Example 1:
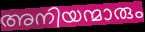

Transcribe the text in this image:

അനിയന്മാരും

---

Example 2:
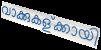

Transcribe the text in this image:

വാക്കുകള്ക്കായി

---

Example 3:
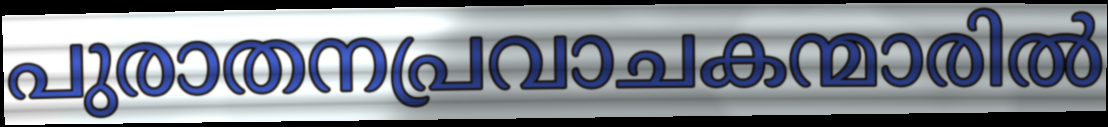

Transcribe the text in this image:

പുരാതനപ്രവാചകന്മാരിൽ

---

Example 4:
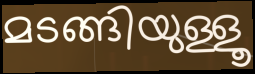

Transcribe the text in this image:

മടങ്ങിയുള്ളൂ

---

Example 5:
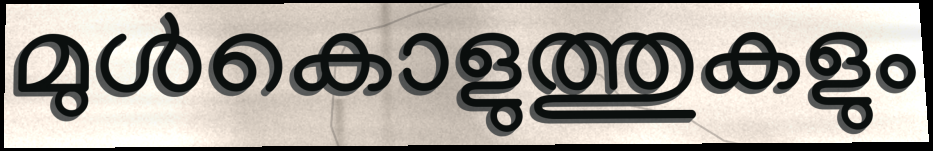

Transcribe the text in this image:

മുൾകൊളുത്തുകളും